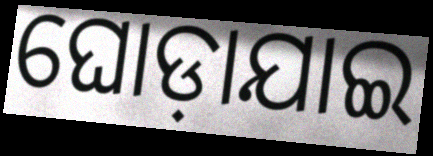
ଘୋଡ଼ାଯାଇ